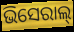
ଭିସେରାଲ୍